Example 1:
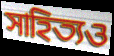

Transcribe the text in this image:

সাহিত্যও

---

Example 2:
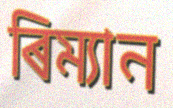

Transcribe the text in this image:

ৰিম্যান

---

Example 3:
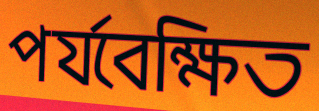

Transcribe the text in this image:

পৰ্যবেক্ষিত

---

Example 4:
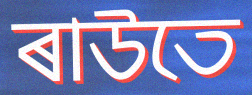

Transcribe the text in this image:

ৰাউতে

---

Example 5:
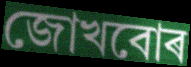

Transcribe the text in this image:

জোখবোৰ